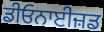
ਡੀਓਨਾਈਜ਼ਡ